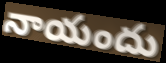
నాయందు